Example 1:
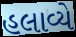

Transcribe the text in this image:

હલાવ્યે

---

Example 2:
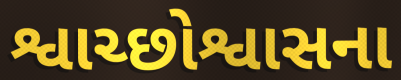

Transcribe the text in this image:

શ્વાચ્છોશ્વાસના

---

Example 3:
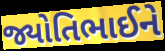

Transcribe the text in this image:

જ્યોતિભાઈને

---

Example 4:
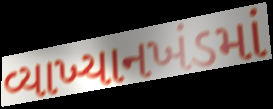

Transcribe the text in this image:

વ્યાખ્યાનખંડમાં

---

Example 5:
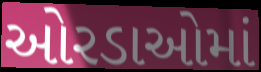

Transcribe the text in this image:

ઓરડાઓમાં